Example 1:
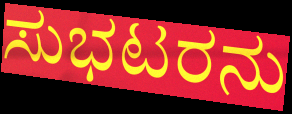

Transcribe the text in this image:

ಸುಭಟರನು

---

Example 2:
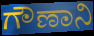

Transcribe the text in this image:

ಗೌಣಾನಿ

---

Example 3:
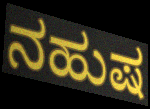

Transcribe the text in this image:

ನಹುಷ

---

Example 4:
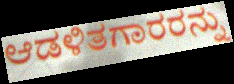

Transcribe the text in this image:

ಆಡಳಿತಗಾರರನ್ನು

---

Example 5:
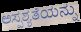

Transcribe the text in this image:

ಅಸ್ಪಶ್ಯತೆಯನ್ನು